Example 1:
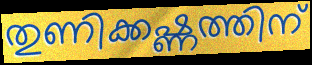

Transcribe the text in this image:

തുണിക്കഷ്ണത്തിന്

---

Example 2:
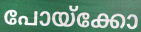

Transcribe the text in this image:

പോയ്ക്കോ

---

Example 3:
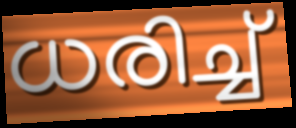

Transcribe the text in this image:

ധരിച്ച്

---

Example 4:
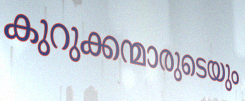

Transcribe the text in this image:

കുറുക്കന്മാരുടെയും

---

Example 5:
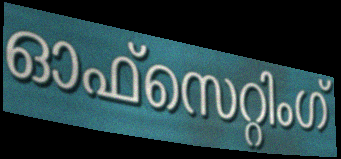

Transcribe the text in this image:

ഓഫ്സെറ്റിംഗ്